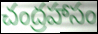
చంద్రహాసం